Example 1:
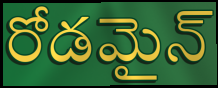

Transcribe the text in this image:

రోడమైన్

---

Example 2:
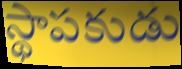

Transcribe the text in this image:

స్థాపకుడు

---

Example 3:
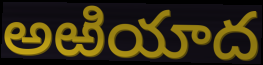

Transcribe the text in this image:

అఱియాద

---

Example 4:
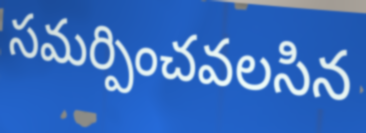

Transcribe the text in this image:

సమర్పించవలసిన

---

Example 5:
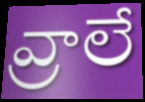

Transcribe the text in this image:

వ్రాలే